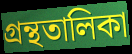
গ্ৰন্থতালিকা